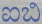
ಐಬಿ